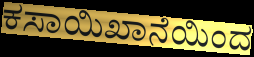
ಕಸಾಯಿಖಾನೆಯಿಂದ